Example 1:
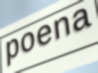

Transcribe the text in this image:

poena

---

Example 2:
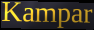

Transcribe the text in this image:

Kampar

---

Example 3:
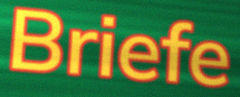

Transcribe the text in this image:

Briefe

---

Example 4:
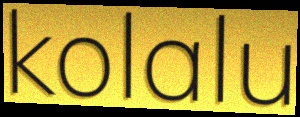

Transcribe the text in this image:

kolalu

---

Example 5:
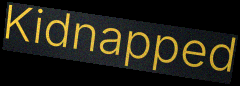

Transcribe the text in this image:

Kidnapped